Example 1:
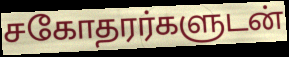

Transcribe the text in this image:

சகோதரர்களுடன்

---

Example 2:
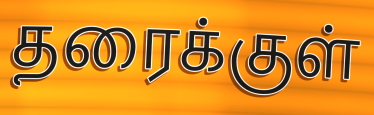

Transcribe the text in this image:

தரைக்குள்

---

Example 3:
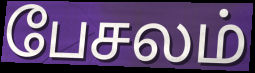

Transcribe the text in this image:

பேசலம்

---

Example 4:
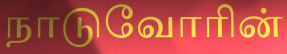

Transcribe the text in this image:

நாடுவோரின்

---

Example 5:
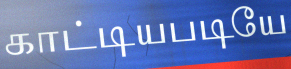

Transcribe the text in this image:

காட்டியபடியே